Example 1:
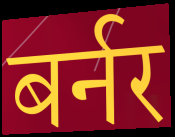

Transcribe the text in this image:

बर्नर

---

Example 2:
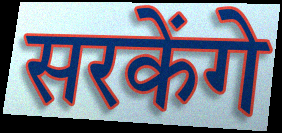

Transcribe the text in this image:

सरकेंगे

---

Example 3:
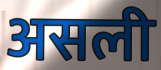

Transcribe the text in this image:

असली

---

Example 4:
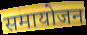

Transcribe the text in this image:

समायोजन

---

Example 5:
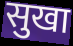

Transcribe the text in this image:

सुखा